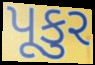
પૂકુર